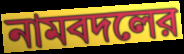
নামবদলের